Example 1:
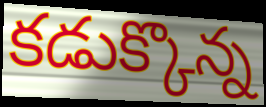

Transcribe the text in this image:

కడుక్కొన్న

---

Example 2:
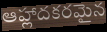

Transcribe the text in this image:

ఆహ్లాదకరమైన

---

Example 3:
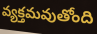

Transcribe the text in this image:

వ్యక్తమవుతోంది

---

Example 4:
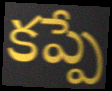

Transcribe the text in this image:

కప్పే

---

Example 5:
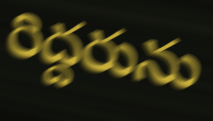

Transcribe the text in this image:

రిద్దరును